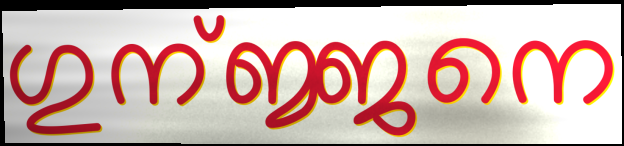
ഗുന്ജ്ജനെ